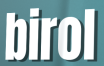
birol